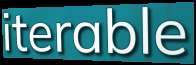
iterable